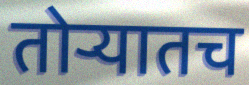
तोऱ्यातच